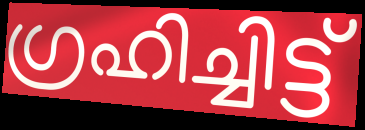
ഗ്രഹിച്ചിട്ട്